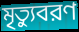
মৃত্যুবরণ